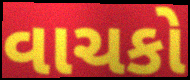
વાચકો